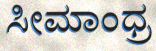
ಸೀಮಾಂಧ್ರ